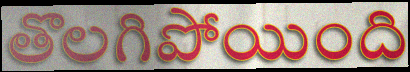
తొలగిపోయింది